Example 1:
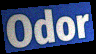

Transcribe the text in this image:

Odor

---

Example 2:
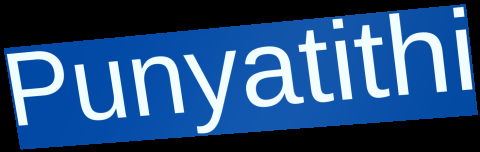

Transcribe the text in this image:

Punyatithi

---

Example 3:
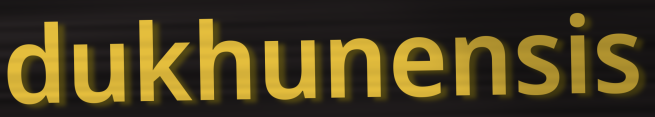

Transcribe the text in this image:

dukhunensis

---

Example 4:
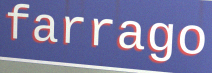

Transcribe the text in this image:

farrago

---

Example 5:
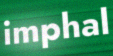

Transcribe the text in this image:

imphal